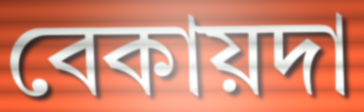
বেকায়দা